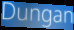
Dungan